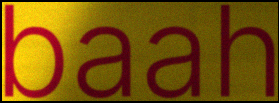
baah